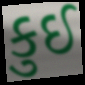
કુઈ